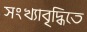
সংখ্যাবৃদ্ধিতে